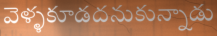
వెళ్ళకూడదనుకున్నాడు